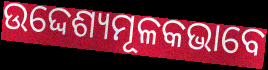
ଉଦ୍ଦେଶ୍ୟମୂଳକଭାବେ